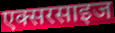
एक्‍सरसाइज